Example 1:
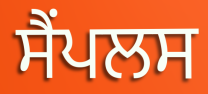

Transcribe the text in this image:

ਸੈਂਪਲਸ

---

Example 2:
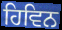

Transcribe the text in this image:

ਹਿਵਿਨ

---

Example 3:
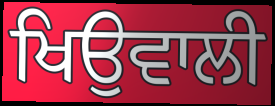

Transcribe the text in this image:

ਖਿਉਵਾਲੀ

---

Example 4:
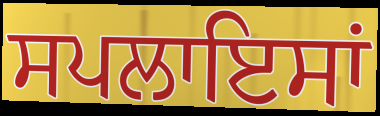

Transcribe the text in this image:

ਸਪਲਾਇਸਾਂ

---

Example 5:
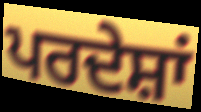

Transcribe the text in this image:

ਪਰਦੇਸ਼ਾਂ